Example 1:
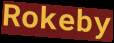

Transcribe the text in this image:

Rokeby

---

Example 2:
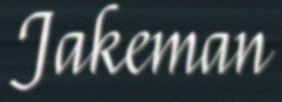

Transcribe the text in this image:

Jakeman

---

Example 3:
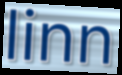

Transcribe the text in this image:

linn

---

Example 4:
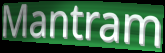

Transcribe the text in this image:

Mantram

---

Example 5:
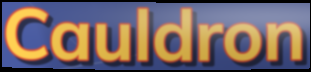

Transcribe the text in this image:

Cauldron